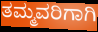
ತಮ್ಮವರಿಗಾಗಿ